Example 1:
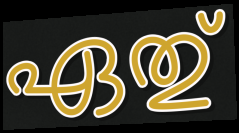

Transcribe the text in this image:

ഏതു്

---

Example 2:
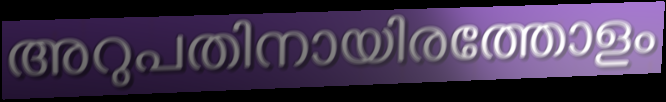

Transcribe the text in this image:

അറുപതിനായിരത്തോളം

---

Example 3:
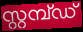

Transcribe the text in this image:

സ്റ്റമ്പ്ഡ്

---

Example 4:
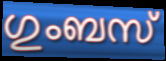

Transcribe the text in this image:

ഗുംബസ്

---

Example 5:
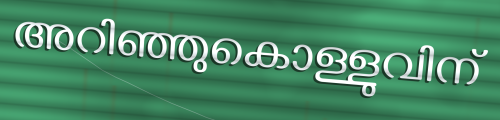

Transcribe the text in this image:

അറിഞ്ഞുകൊള്ളുവിന്